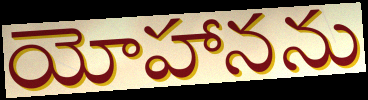
యోహానను